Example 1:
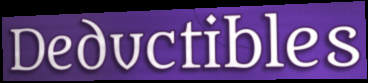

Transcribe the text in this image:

Deductibles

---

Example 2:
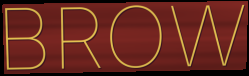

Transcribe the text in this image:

BROW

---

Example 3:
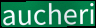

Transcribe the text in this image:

aucheri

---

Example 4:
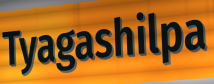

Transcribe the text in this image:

Tyagashilpa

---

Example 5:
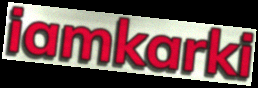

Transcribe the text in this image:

iamkarki